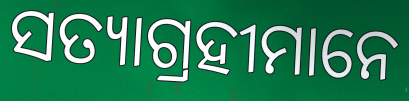
ସତ୍ୟାଗ୍ରହୀମାନେ